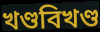
খণ্ডবিখণ্ড